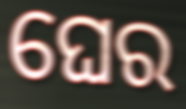
ଘେର